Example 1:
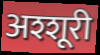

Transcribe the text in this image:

अश्‍शूरी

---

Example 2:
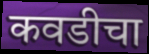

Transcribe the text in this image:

कवडीचा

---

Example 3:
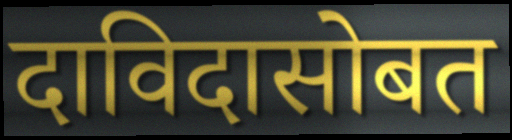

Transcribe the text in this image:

दाविदासोबत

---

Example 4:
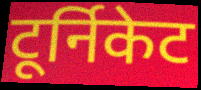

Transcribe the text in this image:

टूर्निकेट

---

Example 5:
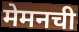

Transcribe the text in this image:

मेमनची